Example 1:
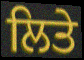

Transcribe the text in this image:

ਲਿਤੇ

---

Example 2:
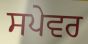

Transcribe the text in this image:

ਸਪੇਵਰ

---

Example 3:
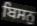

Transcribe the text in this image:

ਬਿਸਨੁ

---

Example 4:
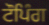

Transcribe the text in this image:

ਟੌਪਿੰਗ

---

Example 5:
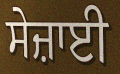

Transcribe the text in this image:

ਸੇਜ਼ਾਈ